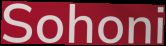
Sohoni